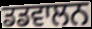
ਡਡਵਾਲਨ